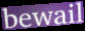
bewail